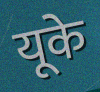
यूके